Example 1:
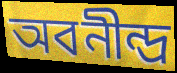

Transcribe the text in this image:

অবনীন্দ্র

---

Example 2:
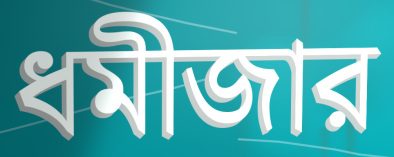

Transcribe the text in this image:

ধমীজার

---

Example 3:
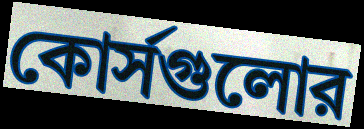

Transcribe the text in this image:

কোর্সগুলোর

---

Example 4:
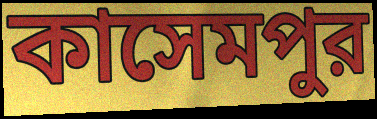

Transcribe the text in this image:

কাসেমপুর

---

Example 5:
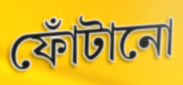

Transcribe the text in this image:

ফোঁটানো